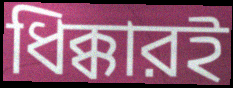
ধিক্কারই